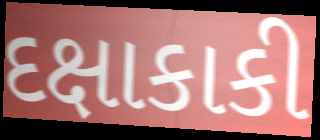
દક્ષાકાકી